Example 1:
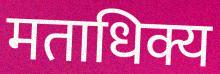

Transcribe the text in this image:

मताधिक्य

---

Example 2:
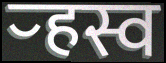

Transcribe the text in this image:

ऱ्हस्व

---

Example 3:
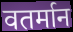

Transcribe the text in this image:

वतर्मान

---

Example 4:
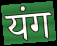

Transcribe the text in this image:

यंग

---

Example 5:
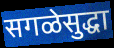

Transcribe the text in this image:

सगळेसुद्धा